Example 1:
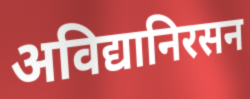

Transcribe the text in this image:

अविद्यानिरसन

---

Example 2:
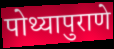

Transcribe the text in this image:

पोथ्यापुराणे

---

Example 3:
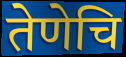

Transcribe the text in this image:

तेणेचि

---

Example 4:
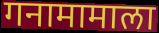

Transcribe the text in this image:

गनामामाला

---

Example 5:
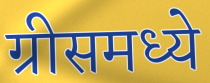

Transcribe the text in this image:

ग्रीसमध्ये